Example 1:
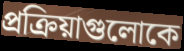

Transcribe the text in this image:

প্রক্রিয়াগুলোকে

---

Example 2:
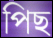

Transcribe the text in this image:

পিছ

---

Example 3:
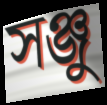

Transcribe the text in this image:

সঞ্জু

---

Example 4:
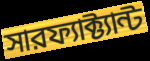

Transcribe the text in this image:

সারফ্যাক্ট্যান্ট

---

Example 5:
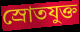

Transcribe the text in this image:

স্রোতযুক্ত